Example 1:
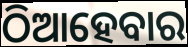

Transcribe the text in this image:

ଠିଆହେବାର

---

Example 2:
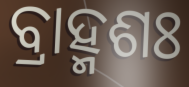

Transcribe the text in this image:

ବ୍ରାହ୍ମଶଃ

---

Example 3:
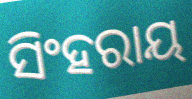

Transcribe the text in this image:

ସିଂହରାୟ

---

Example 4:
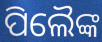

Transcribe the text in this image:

ପିଲୈଙ୍କ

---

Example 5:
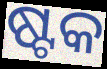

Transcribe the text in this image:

ଷ୍ଟକ